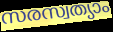
സരസ്വത്യാം